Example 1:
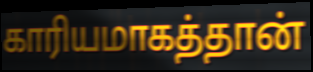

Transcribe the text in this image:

காரியமாகத்தான்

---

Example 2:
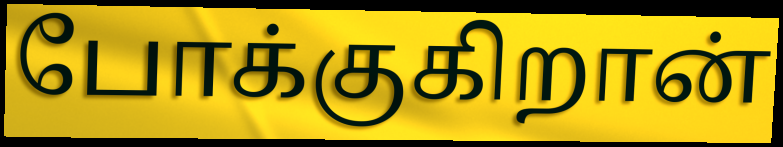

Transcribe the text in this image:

போக்குகிறான்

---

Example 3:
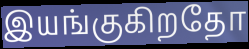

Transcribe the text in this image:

இயங்குகிறதோ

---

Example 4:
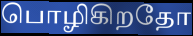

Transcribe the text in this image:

பொழிகிறதோ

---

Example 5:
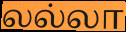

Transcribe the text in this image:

லல்லா